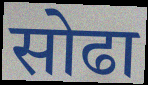
सोढा